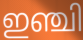
ഇഞ്ചി